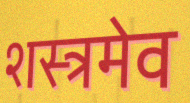
शस्त्रमेव